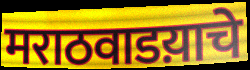
मराठवाडय़ाचे